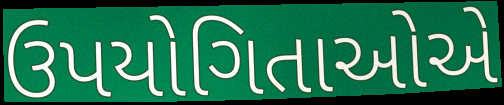
ઉપયોગિતાઓએ